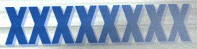
xxxxxxxx